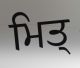
ਮਿਤ੍